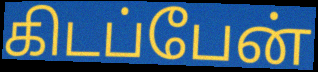
கிடப்பேன்